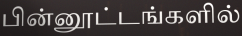
பின்னூட்டங்களில்